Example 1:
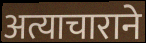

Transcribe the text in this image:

अत्याचाराने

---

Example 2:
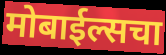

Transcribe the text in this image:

मोबाईल्सचा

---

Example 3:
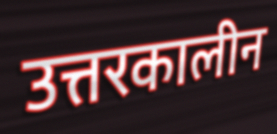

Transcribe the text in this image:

उत्तरकालीन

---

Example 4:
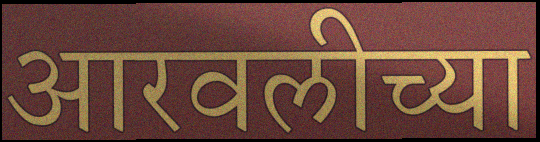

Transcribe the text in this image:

आरवलीच्या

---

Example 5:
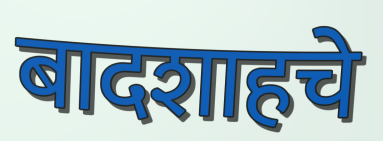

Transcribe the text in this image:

बादशाहचे